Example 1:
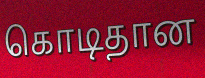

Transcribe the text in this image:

கொடிதான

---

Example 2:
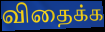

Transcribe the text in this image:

விதைக்க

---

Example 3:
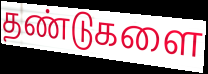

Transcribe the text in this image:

தண்டுகளை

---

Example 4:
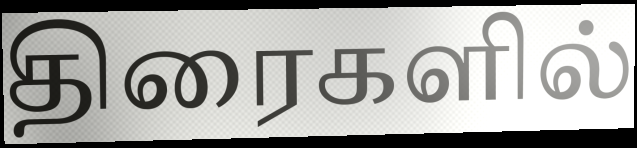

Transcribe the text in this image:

திரைகளில்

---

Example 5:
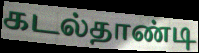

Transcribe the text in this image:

கடல்தாண்டி